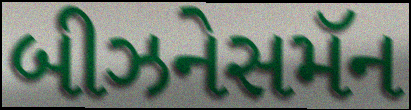
બીઝનેસમૅન